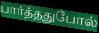
பார்த்ததுபோல்